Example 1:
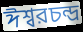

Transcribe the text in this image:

ঈশ্বরচন্দ্র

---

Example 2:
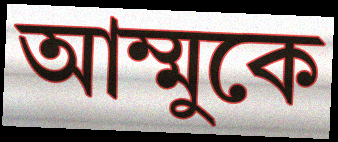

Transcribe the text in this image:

আম্মুকে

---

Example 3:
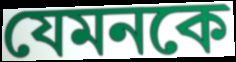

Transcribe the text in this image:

যেমনকে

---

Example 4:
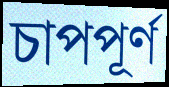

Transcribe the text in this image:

চাপপূর্ণ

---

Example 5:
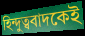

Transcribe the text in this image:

হিন্দুত্ববাদকেই